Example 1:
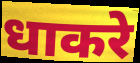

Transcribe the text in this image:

धाकरे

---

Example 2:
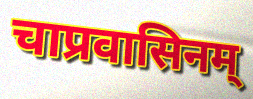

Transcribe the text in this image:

चाप्रवासिनम्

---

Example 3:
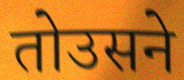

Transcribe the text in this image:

तोउसने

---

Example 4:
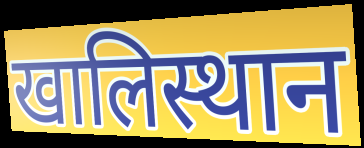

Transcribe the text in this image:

खालिस्थान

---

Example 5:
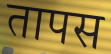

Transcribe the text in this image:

तापस